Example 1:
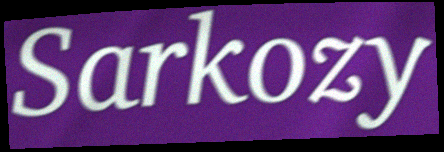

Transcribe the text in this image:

Sarkozy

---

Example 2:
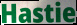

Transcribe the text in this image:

Hastie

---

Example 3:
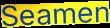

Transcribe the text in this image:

Seamen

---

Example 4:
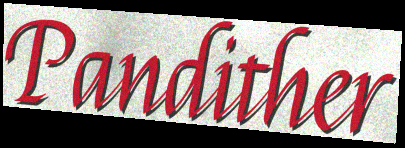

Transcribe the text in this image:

Pandither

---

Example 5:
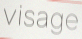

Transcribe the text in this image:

visage